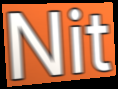
Nit